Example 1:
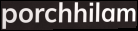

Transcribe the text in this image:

porchhilam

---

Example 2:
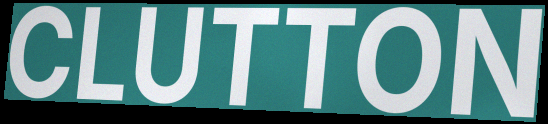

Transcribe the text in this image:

CLUTTON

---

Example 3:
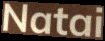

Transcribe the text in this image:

Natai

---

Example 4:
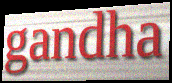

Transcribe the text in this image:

gandha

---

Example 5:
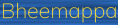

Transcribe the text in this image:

Bheemappa